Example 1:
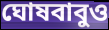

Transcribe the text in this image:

ঘোষবাবুও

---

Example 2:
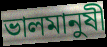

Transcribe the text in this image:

ভালমানুষী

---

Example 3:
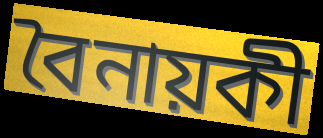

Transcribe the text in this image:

বৈনায়কী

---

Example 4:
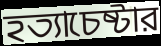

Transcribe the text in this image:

হত্যাচেষ্টার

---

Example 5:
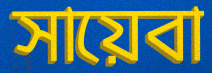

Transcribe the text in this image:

সায়েবা